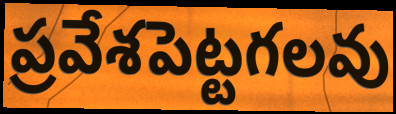
ప్రవేశపెట్టగలవు